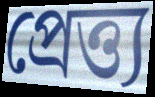
প্রেত্ত্য